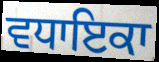
ਵਧਾਇਕਾ